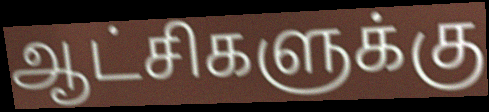
ஆட்சிகளுக்கு